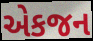
એકજન